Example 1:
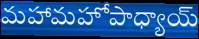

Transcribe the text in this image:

మహామహోపాధ్యాయ్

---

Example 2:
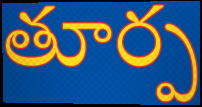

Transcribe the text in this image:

తూర్ప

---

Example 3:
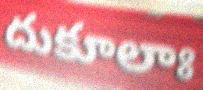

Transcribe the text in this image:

దుకూలాః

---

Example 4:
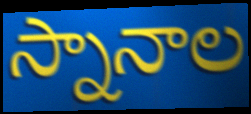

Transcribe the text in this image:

స్నానాల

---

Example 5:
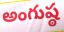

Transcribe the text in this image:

అంగుష్ఠ